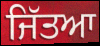
ਜਿੱਤਆ